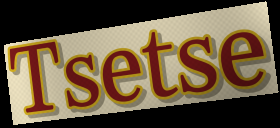
Tsetse